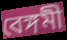
বেঙ্গমী